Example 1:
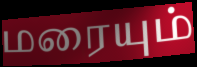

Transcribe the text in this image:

மரையும்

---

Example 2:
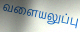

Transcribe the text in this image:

வளையலுப்பு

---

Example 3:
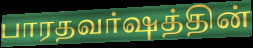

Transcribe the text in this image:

பாரதவர்ஷத்தின்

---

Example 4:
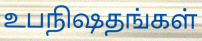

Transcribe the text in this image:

உபநிஷதங்கள்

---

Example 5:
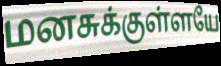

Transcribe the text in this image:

மனசுக்குள்ளயே